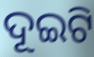
ଦୂଇଟି